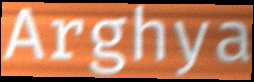
Arghya